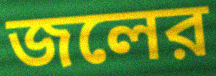
জলের